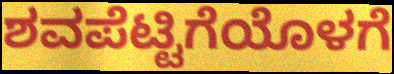
ಶವಪೆಟ್ಟಿಗೆಯೊಳಗೆ